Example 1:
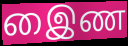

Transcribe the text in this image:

இைண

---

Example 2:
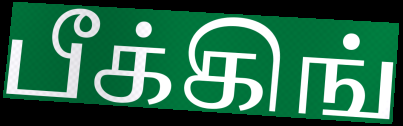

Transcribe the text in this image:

பீக்கிங்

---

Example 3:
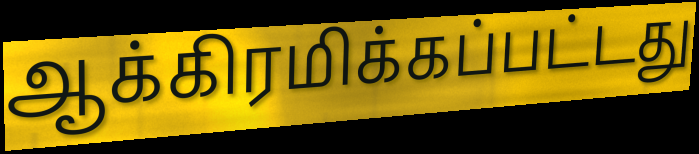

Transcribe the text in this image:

ஆக்கிரமிக்கப்பட்டது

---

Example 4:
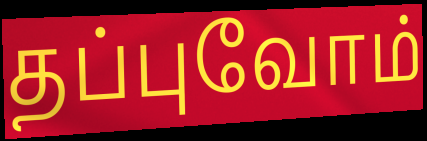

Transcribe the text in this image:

தப்புவோம்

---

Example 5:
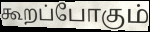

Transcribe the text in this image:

கூறப்போகும்